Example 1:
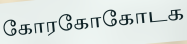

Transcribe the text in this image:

கோரகோகோடக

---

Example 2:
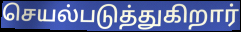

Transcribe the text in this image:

செயல்படுத்துகிறார்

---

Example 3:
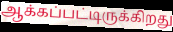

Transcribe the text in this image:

ஆக்கப்பட்டிருக்கிறது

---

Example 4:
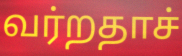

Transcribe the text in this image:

வர்றதாச்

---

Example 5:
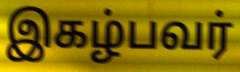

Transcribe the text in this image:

இகழ்பவர்